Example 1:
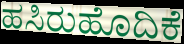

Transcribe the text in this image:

ಹಸಿರುಹೊದಿಕೆ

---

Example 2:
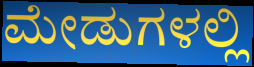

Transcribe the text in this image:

ಮೇಡುಗಳಲ್ಲಿ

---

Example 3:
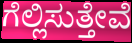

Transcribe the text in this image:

ಗೆಲ್ಲಿಸುತ್ತೇವೆ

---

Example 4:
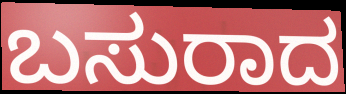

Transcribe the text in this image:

ಬಸುರಾದ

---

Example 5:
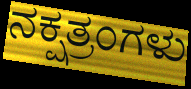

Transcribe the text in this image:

ನಕ್ಷತ್ರಂಗಳು